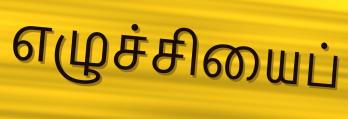
எழுச்சியைப்